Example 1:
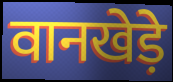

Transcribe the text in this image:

वानखेड़े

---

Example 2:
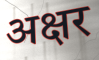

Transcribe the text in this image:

अक्षर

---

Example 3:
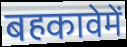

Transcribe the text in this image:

बहकावेमें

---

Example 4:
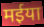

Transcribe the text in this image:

मईया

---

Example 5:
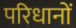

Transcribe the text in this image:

परिधानों